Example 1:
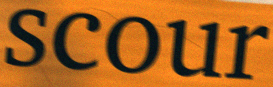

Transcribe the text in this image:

scour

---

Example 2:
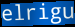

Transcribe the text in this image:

elrigu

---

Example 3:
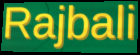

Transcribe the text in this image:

Rajbali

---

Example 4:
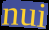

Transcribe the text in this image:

nui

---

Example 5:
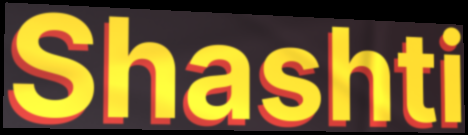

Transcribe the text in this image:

Shashti